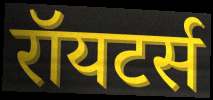
रॉयटर्स